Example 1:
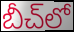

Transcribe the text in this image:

బీచ్‌లో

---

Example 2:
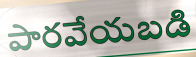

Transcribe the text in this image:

పారవేయబడి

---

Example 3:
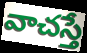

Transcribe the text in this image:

వాచస్తే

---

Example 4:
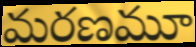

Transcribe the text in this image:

మరణమూ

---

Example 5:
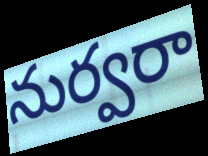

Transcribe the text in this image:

నుర్వరా